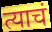
त्याचं